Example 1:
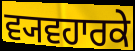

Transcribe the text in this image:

ਵ੍ਯਵਹਾਰਕੇ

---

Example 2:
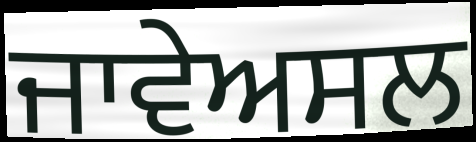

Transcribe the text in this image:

ਜਾਵੇਅਸਲ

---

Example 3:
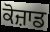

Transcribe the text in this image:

ਕੋਜ਼ਾਡ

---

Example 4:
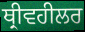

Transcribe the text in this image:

ਥ੍ਰੀਵਹੀਲਰ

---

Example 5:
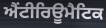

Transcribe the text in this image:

ਐਂਟੀਰਿਊਮੈਟਿਕ